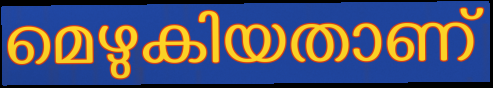
മെഴുകിയതാണ്